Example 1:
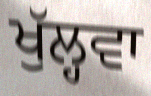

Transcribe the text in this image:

ਖੁੱਲ੍ਹਵਾ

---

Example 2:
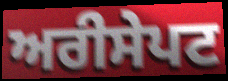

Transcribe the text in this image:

ਅਰੀਸੇਪਟ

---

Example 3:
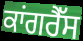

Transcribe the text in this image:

ਕਾਂਗਰੈੱਸ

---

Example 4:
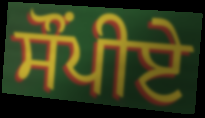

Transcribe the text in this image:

ਸੌਂਪੀਏ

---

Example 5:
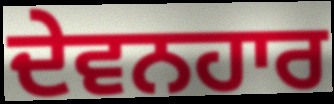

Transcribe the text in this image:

ਦੇਵਨਹਾਰ